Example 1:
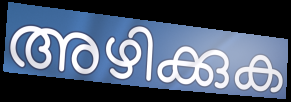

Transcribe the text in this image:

അഴിക്കുക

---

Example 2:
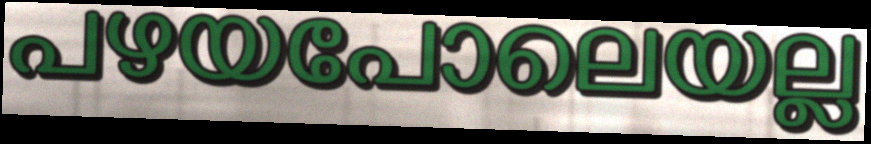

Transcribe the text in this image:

പഴയപോലെയല്ല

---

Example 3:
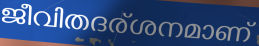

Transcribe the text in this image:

ജീവിതദര്ശനമാണ്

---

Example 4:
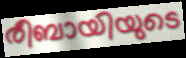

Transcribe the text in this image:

രീബായിയുടെ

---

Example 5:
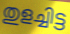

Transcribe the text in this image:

തുളച്ചിട്ട